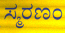
ಸ್ಮರಣಂ